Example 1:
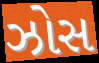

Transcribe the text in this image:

ઝોસ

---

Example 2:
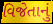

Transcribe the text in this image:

વિજેતાનું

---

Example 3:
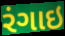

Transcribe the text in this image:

રંગાઇ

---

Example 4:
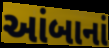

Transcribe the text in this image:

આંબાનાં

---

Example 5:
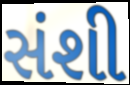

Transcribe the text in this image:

સંશી